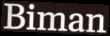
Biman